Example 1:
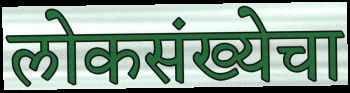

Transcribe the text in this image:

लोकसंख्येचा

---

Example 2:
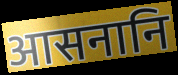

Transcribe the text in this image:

आसनानि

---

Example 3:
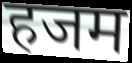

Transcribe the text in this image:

हजम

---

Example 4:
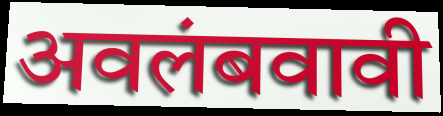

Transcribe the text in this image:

अवलंबवावी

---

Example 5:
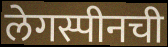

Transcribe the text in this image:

लेगस्पीनची